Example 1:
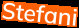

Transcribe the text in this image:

Stefani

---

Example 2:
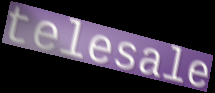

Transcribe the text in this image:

telesale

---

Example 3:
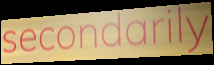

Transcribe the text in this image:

secondarily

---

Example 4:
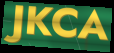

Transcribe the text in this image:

JKCA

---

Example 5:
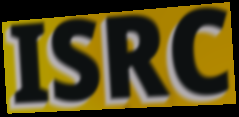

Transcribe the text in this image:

ISRC